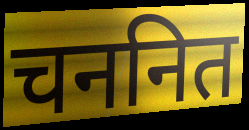
चननित